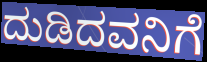
ದುಡಿದವನಿಗೆ